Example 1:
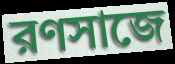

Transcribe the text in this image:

রণসাজে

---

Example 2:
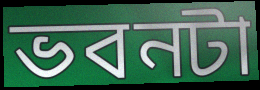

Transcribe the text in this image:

ভবনটা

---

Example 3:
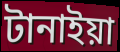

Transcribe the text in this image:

টানাইয়া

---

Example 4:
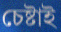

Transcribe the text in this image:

চেষ্টাই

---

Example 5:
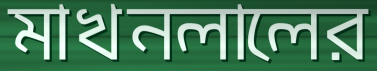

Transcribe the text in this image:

মাখনলালের